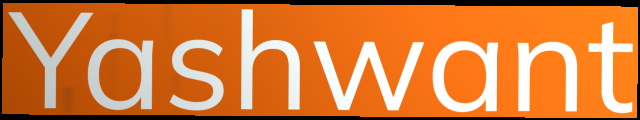
Yashwant